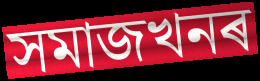
সমাজখনৰ